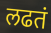
लढतं